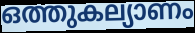
ഒത്തുകല്യാണം